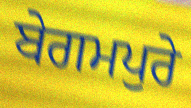
ਬੇਗਮਪੁਰੇ